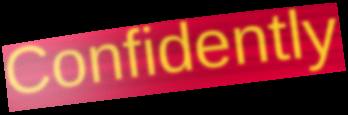
Confidently